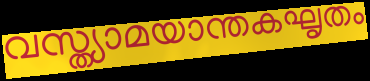
വസ്ത്യാമയാന്തകഘൃതം